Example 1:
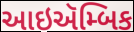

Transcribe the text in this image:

આઇઍમ્બિક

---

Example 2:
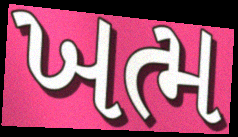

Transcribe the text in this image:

ખત્મ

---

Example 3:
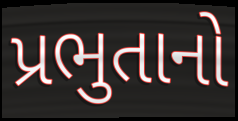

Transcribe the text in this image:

પ્રભુતાનો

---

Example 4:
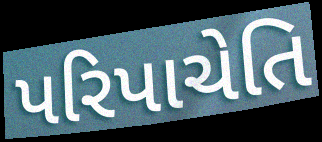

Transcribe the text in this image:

પરિપાચેતિ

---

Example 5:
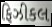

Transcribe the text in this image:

ફિઝીકલ